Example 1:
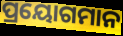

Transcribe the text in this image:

ପ୍ରୟୋଗମାନ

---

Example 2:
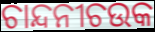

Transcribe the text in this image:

ଚାନ୍ଦନୀଚଉକ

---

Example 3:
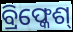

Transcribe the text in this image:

ବ୍ରିଫ୍କେଶ୍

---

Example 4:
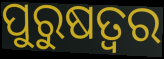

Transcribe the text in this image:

ପୁରୁଷତ୍ଵର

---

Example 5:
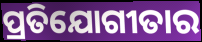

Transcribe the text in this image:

ପ୍ରତିଯୋଗୀତାର